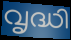
വൃദ്ധി